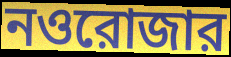
নওরোজার